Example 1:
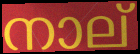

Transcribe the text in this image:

നാല്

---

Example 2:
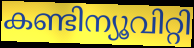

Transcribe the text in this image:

കണ്ടിന്യൂവിറ്റി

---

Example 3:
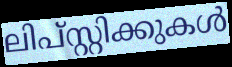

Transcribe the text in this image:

ലിപ്സ്റ്റിക്കുകൾ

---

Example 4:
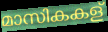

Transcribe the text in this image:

മാസികകള്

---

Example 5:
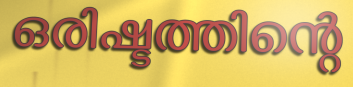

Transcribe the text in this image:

ഒരിഷ്ടത്തിന്റെ